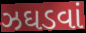
ઝઘડવાં